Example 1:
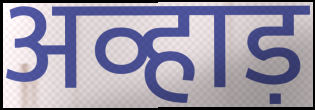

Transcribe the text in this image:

अव्हाड़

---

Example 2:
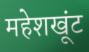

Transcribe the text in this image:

महेशखूंट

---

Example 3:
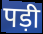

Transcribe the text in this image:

पड़ी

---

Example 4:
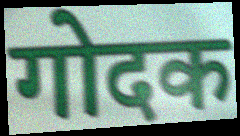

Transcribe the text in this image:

गोदक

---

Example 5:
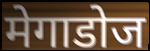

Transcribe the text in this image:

मेगाडोज